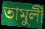
তামুলী